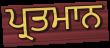
ਪ੍ਰਤਮਾਨ